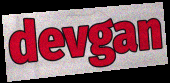
devgan